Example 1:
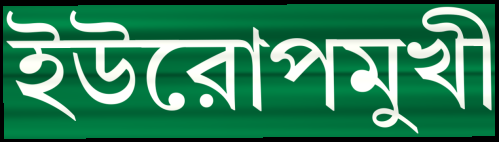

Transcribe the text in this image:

ইউরোপমুখী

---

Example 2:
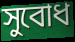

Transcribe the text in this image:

সুবোধ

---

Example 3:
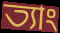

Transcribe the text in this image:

ত্যাং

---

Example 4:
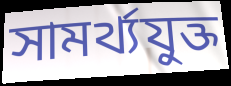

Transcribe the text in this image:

সামর্থ্যযুক্ত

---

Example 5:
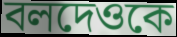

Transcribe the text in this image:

বলদেওকে